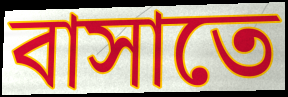
বাসাতে